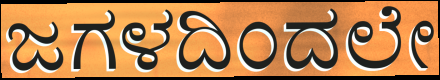
ಜಗಳದಿಂದಲೇ